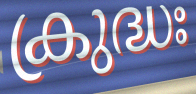
ക്രുദ്ധഃ